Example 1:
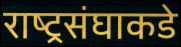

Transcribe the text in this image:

राष्ट्रसंघाकडे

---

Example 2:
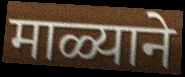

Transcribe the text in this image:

माळ्याने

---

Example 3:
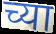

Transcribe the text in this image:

च्या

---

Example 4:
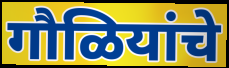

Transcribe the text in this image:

गौळियांचे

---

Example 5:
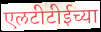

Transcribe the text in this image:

एलटीटीईच्या